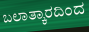
ಬಲಾತ್ಕಾರದಿಂದ